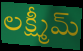
లక్ష్మీమ్